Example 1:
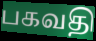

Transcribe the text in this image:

பகவதி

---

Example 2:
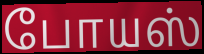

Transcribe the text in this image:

போயஸ்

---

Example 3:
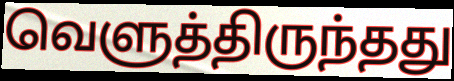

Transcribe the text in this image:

வெளுத்திருந்தது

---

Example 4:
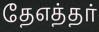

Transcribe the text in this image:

தேஎத்தர்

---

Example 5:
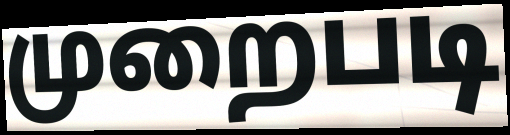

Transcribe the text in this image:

முறைபடி